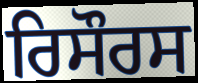
ਰਿਸੌਰਸ